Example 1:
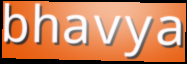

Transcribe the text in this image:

bhavya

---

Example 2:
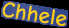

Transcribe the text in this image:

Chhele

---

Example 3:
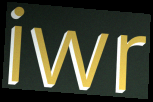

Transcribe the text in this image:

iwr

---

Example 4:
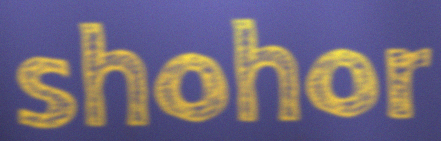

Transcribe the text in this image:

shohor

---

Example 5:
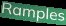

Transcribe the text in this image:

Ramples